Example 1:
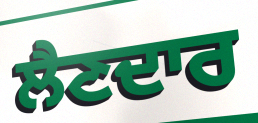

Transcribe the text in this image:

ਲੈਣਦਾਰ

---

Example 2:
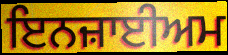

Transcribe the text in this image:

ਇਨਜ਼ਾਈਅਮ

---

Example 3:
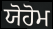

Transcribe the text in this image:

ਯੋਹੋਮ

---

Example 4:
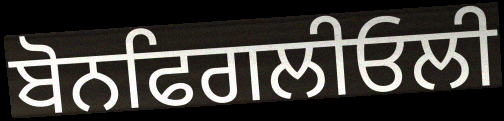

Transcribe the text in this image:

ਬੋਨਫਿਗਲੀਓਲੀ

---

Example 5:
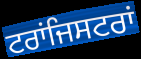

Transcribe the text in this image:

ਟਰਾਂਜਿਸਟਰਾਂ